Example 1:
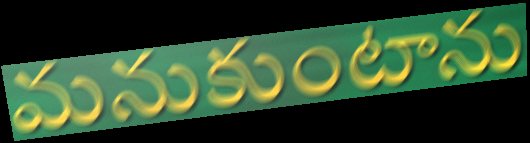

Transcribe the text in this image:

మనుకుంటాను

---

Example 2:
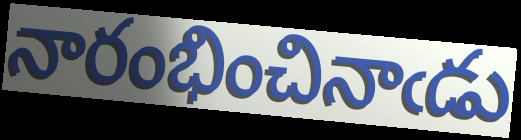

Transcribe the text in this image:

నారంభించినాఁడు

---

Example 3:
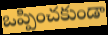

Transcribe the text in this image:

ఒప్పించకుండా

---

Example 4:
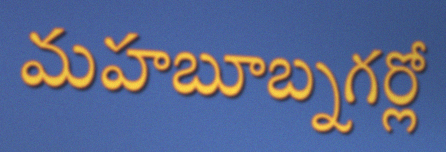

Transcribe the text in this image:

మహబూబ్నగర్లో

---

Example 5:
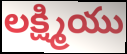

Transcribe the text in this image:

లక్ష్మియు